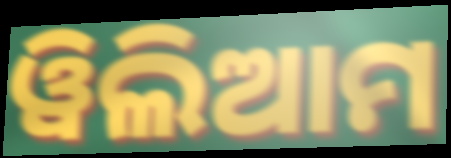
ୱିଲିଆମ